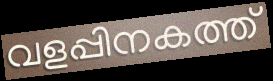
വളപ്പിനകത്ത്